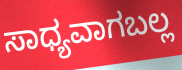
ಸಾಧ್ಯವಾಗಬಲ್ಲ